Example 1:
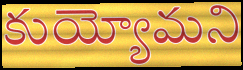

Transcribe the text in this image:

కుయ్యోమని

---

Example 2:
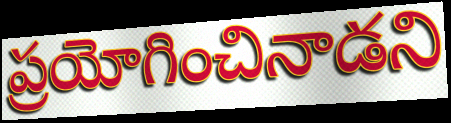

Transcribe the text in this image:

ప్రయోగించినాడని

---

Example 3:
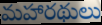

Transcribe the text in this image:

మహారథులు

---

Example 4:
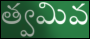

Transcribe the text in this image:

త్వమివ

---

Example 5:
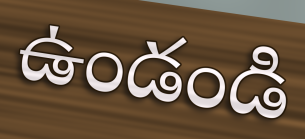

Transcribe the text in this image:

ఉండండి